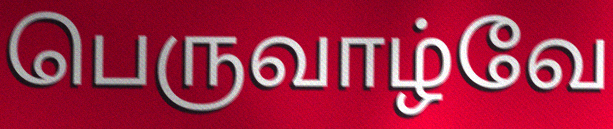
பெருவாழ்வே